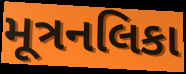
મૂત્રનલિકા